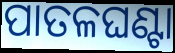
ପାତଳଘଣ୍ଟା